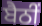
ਬੈਠੀਂ